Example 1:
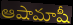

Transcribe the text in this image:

ఆషామాషీ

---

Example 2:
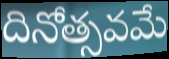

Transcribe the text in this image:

దినోత్సవమే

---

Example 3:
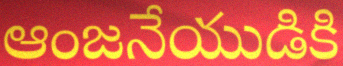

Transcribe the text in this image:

ఆంజనేయుడికి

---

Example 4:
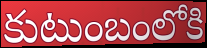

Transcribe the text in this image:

కుటుంబంలోకి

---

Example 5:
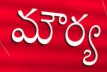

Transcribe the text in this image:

మౌర్య